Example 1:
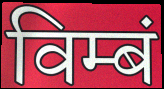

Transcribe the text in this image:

विम्बं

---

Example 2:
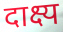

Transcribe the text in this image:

दाक्ष्य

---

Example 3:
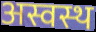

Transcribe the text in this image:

अस्वस्थ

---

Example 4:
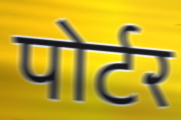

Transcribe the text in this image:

पोर्टर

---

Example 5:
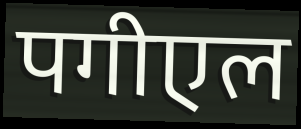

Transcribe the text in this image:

पगीएल